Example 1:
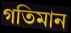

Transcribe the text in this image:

গতিমান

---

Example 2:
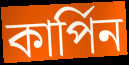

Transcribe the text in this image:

কার্পিন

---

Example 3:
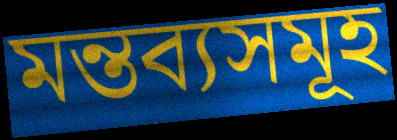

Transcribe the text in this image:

মন্তব্যসমূহ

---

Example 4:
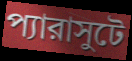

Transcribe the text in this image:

প্যারাসুটে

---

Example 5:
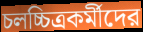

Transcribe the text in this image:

চলচ্চিত্রকর্মীদের